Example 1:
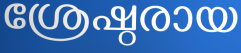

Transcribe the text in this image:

ശ്രേഷ്ഠരായ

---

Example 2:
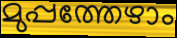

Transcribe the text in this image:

മുപ്പത്തേഴാം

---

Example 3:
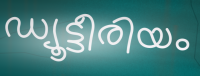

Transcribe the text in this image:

ഡ്യൂട്ടീരിയം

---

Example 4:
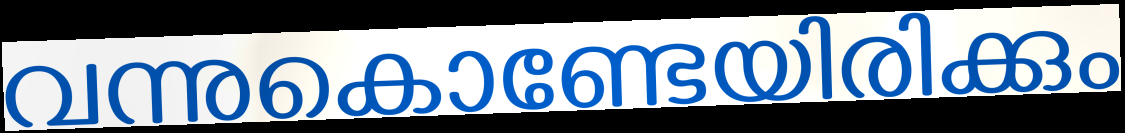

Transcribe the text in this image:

വന്നുകൊണ്ടേയിരിക്കും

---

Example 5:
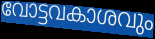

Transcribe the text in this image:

വോട്ടവകാശവും